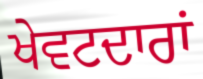
ਖੇਵਟਦਾਰਾਂ